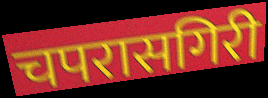
चपरासगिरी